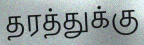
தரத்துக்கு